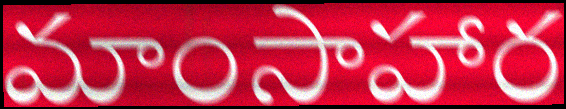
మాంసాహార